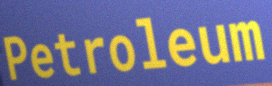
Petroleum